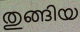
തുങ്ങിയ